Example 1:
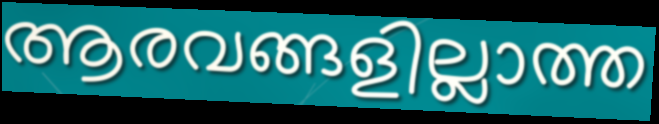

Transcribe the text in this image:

ആരവങ്ങളില്ലാത്ത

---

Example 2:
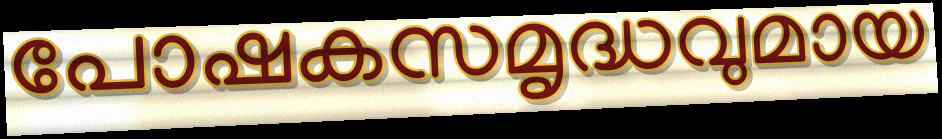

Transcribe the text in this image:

പോഷകസമൃദ്ധവുമായ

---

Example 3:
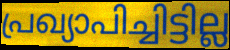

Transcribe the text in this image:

പ്രഖ്യാപിച്ചിട്ടില്ല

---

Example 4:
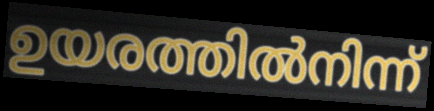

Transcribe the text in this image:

ഉയരത്തിൽനിന്ന്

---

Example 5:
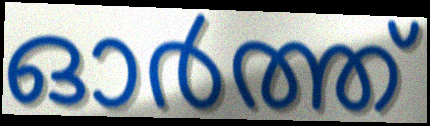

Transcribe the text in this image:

ഓർത്ത്